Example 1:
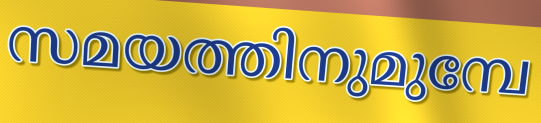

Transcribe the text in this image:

സമയത്തിനുമുമ്പേ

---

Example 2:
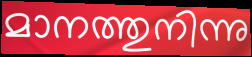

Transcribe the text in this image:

മാനത്തുനിന്നു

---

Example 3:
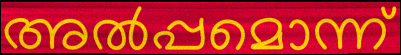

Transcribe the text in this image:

അൽപ്പമൊന്ന്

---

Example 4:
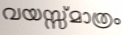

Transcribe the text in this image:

വയസ്സ്മാത്രം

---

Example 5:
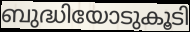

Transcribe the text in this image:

ബുദ്ധിയോടുകൂടി